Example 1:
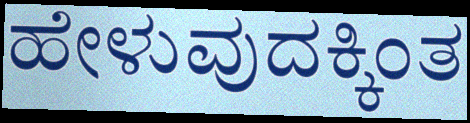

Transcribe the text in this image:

ಹೇಳುವುದಕ್ಕಿಂತ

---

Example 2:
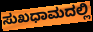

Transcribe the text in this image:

ಸುಖಧಾಮದಲ್ಲಿ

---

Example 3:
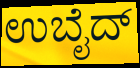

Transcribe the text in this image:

ಉಬೈದ್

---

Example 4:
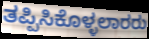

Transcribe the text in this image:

ತಪ್ಪಿಸಿಕೊಳ್ಳಲಾರರು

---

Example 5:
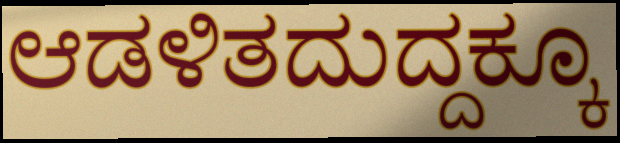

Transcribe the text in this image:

ಆಡಳಿತದುದ್ದಕ್ಕೂ